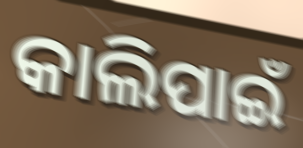
କାଲିପାଇଁ